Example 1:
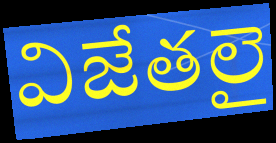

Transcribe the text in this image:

విజేతలై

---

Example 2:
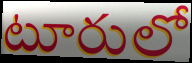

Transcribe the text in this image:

టూరులో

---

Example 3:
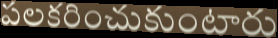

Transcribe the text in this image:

పలకరించుకుంటారు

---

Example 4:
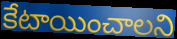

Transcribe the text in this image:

కేటాయించాలని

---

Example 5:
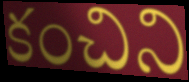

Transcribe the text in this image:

కంచిని